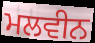
ਮਲਵੀਨ